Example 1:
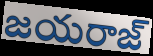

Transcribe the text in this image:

జయరాజ్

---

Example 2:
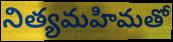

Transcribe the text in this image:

నిత్యమహిమతో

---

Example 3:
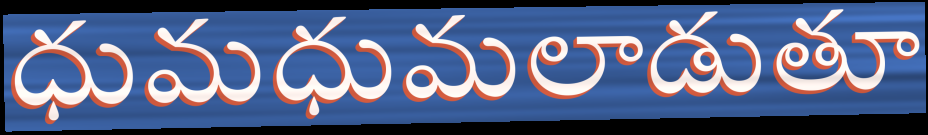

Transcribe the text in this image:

ధుమధుమలాడుతూ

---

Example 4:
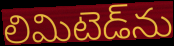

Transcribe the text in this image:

లిమిటెడ్‌ను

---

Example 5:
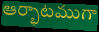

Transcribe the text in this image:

ఆర్భాటముగా